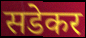
सडेकर